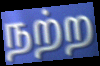
நற்ற